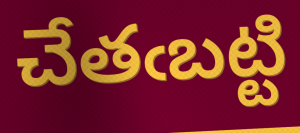
చేతఁబట్టి